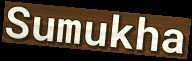
Sumukha